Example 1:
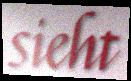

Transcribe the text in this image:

sieht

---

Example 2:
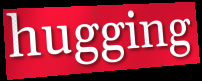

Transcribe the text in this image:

hugging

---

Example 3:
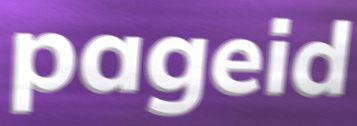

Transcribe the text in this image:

pageid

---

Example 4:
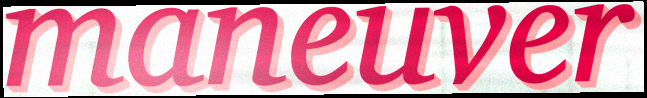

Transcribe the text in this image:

maneuver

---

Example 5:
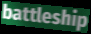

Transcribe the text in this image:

battleship